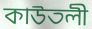
কাউতলী